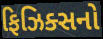
ફિઝિક્સનો